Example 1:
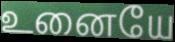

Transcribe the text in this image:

உனையே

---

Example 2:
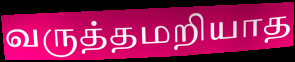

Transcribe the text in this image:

வருத்தமறியாத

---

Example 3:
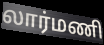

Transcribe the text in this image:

லார்மணி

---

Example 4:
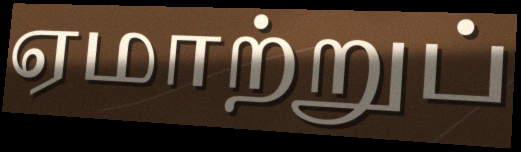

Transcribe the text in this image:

ஏமாற்றுப்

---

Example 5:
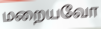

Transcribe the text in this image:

மறையவோ